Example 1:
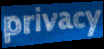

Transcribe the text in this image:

privacy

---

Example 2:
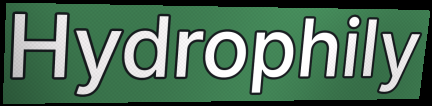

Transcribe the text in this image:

Hydrophily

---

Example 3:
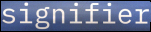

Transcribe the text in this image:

signifier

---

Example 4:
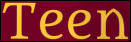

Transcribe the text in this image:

Teen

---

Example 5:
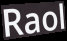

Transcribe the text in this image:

Raol